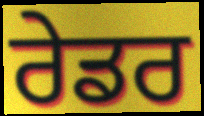
ਰੇਡਰ